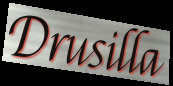
Drusilla